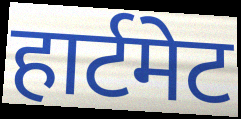
हार्टमेट